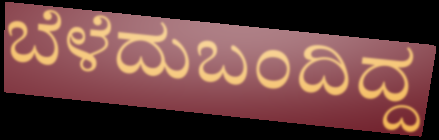
ಬೆಳೆದುಬಂದಿದ್ದ